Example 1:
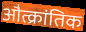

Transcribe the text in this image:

औत्क्रांतिक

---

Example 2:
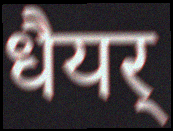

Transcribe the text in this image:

धैयर्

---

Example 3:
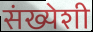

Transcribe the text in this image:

संख्येशी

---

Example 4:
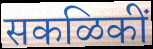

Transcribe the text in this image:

सकळिकीं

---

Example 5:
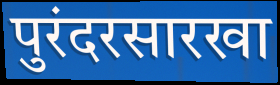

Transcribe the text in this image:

पुरंदरसारखा